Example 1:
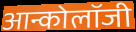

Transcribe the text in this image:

आन्कोलॉजी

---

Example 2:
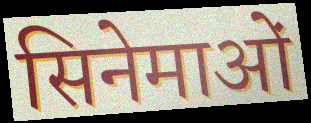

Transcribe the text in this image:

सिनेमाओं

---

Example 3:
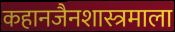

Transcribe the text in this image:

कहानजैनशास्त्रमाला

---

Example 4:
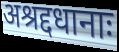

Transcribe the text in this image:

अश्रद्दधानाः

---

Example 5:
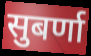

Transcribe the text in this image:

सुबर्णा